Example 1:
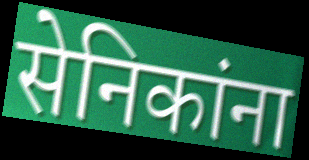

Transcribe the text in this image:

सेनिकांना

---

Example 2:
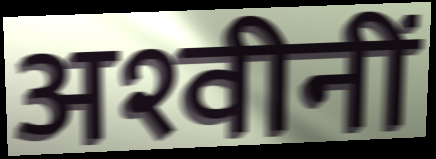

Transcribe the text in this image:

अश्वीनीं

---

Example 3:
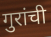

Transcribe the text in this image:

गुरांची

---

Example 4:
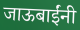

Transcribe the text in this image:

जाऊबाईंनी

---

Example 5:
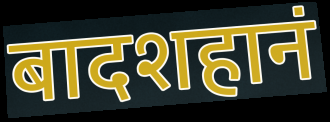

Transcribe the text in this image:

बादशहानं